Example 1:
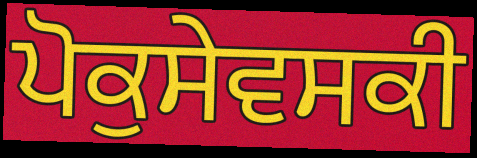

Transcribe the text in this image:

ਪੋਕੁਸੇਵਸਕੀ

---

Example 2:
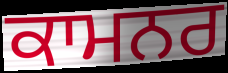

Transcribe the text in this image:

ਕਾਮਨਰ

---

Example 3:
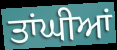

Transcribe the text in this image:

ਤਾਂਘੀਆਂ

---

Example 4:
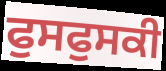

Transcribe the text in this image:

ਫੁਸਫੁਸਕੀ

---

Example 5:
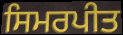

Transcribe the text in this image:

ਸਿਮਰਪੀਤ